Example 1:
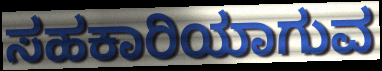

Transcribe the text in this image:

ಸಹಕಾರಿಯಾಗುವ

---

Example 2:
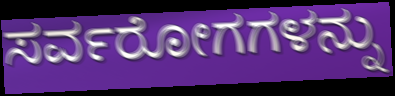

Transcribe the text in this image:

ಸರ್ವರೋಗಗಳನ್ನು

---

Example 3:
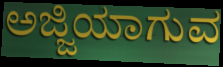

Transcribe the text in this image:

ಅಜ್ಜಿಯಾಗುವ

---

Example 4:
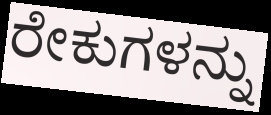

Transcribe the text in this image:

ರೇಕುಗಳನ್ನು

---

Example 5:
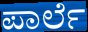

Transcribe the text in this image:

ಪಾರ್ಲೆ